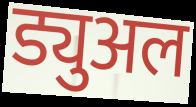
ड्युअल